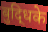
बुद्धिके